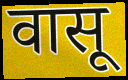
वासू